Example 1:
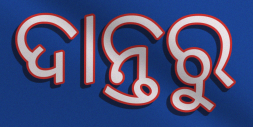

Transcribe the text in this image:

ଦାନ୍ତରୁ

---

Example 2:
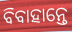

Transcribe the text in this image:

ବିବାହାନ୍ତେ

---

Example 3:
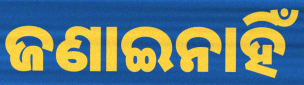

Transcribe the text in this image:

ଜଣାଇନାହିଁ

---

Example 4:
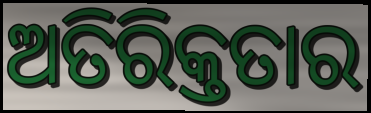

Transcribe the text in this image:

ଅତିରିକ୍ତତାର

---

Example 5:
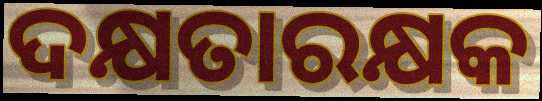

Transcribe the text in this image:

ଦକ୍ଷତାରକ୍ଷକ